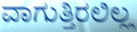
ವಾಗುತ್ತಿರಲಿಲ್ಲ